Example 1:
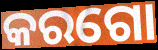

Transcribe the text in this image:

କରଗୋ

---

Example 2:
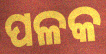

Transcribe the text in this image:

ପଳକ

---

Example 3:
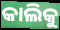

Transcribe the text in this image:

କାଲିକୁ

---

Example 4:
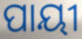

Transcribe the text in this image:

ପାୟୀ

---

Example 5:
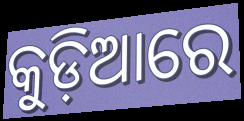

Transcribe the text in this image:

କୁଡ଼ିଆରେ